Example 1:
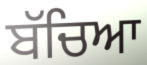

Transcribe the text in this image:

ਬੱਚਿਆ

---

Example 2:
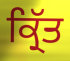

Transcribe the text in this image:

ਕ੍ਰਿੱਤ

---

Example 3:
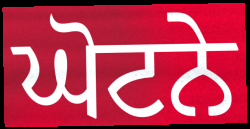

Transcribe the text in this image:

ਘੋਟਨੇ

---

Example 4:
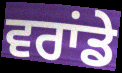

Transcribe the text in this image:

ਵਰਾਂਡੇ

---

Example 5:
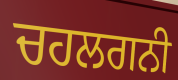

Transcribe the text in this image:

ਚਹਲਗਨੀ